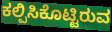
ಕಲ್ಪಿಸಿಕೊಟ್ಟಿರುವ